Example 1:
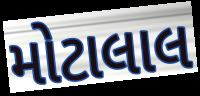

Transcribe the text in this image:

મોટાલાલ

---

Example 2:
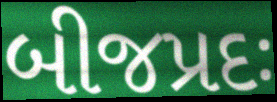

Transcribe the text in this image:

બીજપ્રદઃ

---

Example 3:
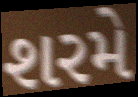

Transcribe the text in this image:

શરમે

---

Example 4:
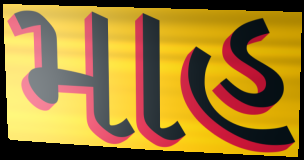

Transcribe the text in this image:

માહ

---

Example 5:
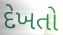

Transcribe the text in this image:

દેખતો